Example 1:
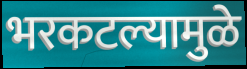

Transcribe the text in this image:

भरकटल्यामुळे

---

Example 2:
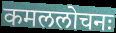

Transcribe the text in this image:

कमललोचनः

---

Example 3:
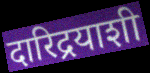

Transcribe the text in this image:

दारिद्रयाशी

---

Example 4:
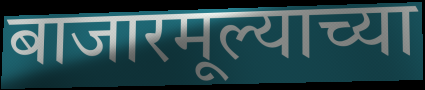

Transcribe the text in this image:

बाजारमूल्याच्या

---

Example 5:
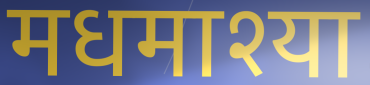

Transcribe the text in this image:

मधमाश्या